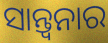
ସାନ୍ତ୍ବନାର